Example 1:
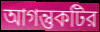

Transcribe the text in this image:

আগন্তুকটির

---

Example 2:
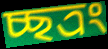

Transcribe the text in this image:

চ্ছত্রং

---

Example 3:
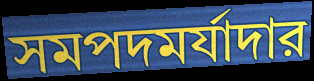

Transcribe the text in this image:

সমপদমর্যাদার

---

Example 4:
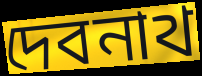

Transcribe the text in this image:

দেবনাথ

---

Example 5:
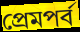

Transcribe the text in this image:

প্রেমপর্ব